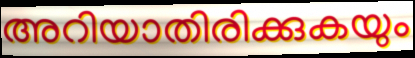
അറിയാതിരിക്കുകയും